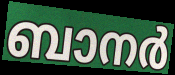
ബാനർ